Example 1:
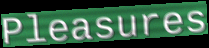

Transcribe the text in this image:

Pleasures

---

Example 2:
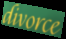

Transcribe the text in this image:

divorce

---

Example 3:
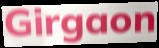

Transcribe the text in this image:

Girgaon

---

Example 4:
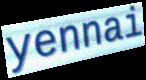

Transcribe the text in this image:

yennai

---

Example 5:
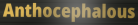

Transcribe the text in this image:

Anthocephalous